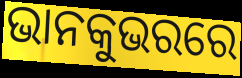
ଭାନକୁଭରରେ